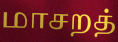
மாசறத்